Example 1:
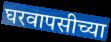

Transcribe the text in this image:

घरवापसीच्या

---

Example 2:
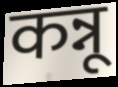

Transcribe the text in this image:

कन्नू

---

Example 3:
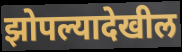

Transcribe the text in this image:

झोपल्यादेखील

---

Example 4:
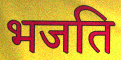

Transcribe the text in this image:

भजति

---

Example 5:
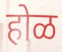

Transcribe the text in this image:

होळ